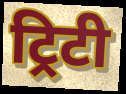
ट्रिटी